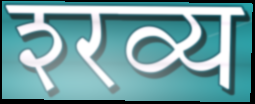
श्रव्य